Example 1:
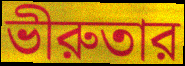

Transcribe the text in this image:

ভীরুতার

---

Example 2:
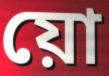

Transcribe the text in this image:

য়ো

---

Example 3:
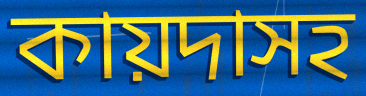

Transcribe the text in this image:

কায়দাসহ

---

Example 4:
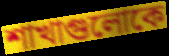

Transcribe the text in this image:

শাখাগুলোকে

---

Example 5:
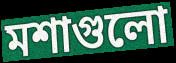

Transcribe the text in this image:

মশাগুলো